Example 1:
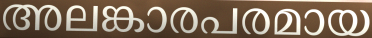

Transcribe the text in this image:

അലങ്കാരപരമായ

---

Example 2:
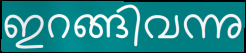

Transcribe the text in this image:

ഇറങ്ങിവന്നു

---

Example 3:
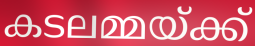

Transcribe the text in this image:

കടലമ്മയ്ക്ക്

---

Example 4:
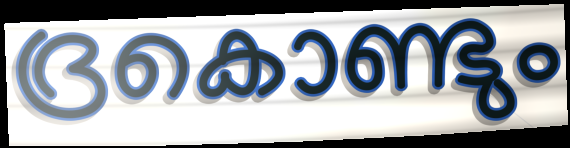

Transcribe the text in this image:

ദ്രകൊണ്ടും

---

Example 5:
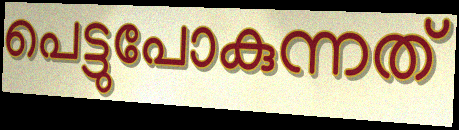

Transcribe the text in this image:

പെട്ടുപോകുന്നത്